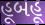
હૂબહૂ